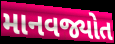
માનવજ્યોત